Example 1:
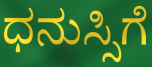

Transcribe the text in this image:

ಧನುಸ್ಸಿಗೆ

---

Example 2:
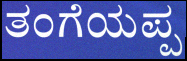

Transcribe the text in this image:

ತಂಗೆಯಪ್ಪ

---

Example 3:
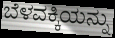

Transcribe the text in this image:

ಬೆಳವಕ್ಕಿಯನ್ನು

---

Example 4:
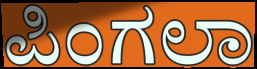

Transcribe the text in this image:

ಪಿಂಗಲಾ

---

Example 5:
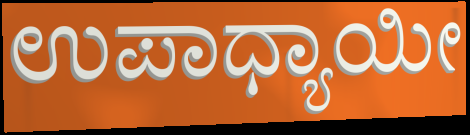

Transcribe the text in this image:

ಉಪಾಧ್ಯಾಯೀ